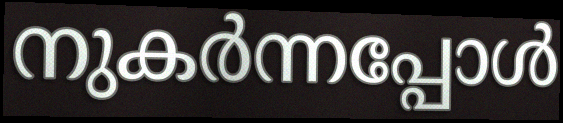
നുകർന്നപ്പോൾ